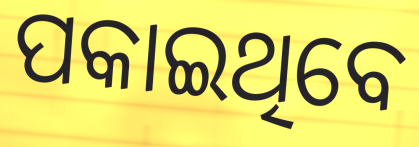
ପକାଇଥିବେ